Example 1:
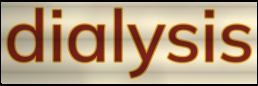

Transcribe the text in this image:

dialysis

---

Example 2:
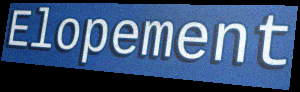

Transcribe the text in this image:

Elopement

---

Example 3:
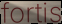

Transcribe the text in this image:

fortis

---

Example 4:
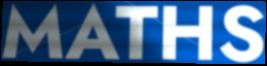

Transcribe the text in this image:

MATHS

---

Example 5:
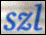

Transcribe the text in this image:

szl